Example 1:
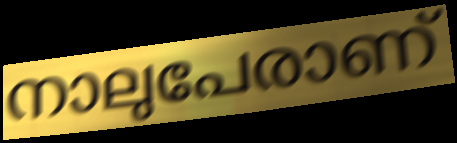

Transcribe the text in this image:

നാലുപേരാണ്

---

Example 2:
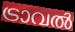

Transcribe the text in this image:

ട്രാവൽ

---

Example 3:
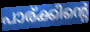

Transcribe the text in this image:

പാര്ക്കിന്റെ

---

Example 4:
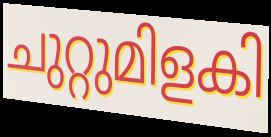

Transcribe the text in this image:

ചുറ്റുമിളകി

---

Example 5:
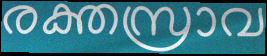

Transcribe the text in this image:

രക്തസ്രാവ